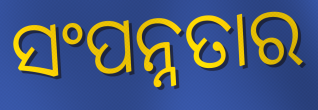
ସଂପନ୍ନତାର